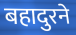
बहादुरने